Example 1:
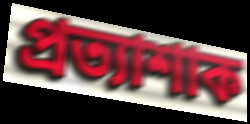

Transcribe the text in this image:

প্ৰত্যাশাক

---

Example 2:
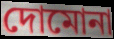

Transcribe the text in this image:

দোমোনা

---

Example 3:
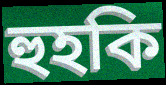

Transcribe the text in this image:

হুহকি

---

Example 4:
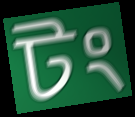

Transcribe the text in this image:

টং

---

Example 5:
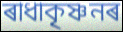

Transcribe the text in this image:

ৰাধাকৃষ্ণনৰ